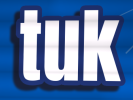
tuk